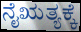
ನೈಋತ್ಯಕ್ಕೆ